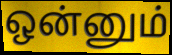
ஒன்னும்